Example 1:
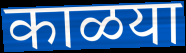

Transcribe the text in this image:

काळया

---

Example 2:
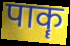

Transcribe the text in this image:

पाकॄ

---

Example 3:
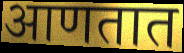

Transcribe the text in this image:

आणतात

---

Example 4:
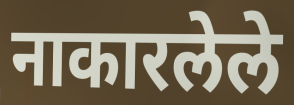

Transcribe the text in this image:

नाकारलेले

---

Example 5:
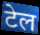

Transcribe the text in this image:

टेल